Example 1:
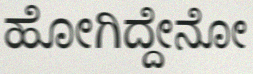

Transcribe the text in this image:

ಹೋಗಿದ್ದೇನೋ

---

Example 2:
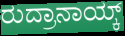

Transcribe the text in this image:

ರುದ್ರಾನಾಯ್ಕ್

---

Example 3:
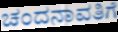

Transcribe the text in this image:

ಚಂದನಾವತಿಗೆ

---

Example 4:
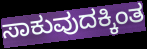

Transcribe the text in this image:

ಸಾಕುವುದಕ್ಕಿಂತ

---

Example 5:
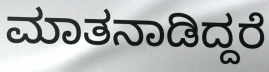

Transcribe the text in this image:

ಮಾತನಾಡಿದ್ದರೆ